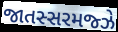
જાતસ્સરમજ્ઝે